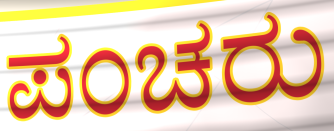
ಪಂಚರು